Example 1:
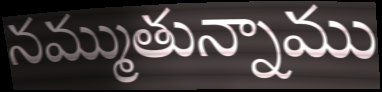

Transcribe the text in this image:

నమ్ముతున్నాము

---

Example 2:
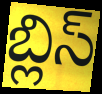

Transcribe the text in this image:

బ్లిస్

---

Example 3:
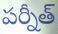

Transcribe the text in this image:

పర్నీత్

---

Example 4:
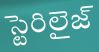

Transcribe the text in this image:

స్టెరిలైజ్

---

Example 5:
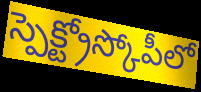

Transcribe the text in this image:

స్పెక్ట్రోస్కోపీలో